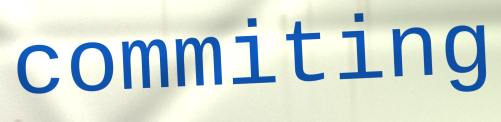
commiting